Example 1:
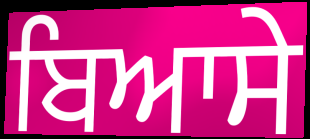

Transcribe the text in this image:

ਬਿਆਸੇ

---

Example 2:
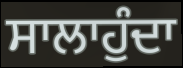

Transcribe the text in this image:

ਸਾਲਾਹੁੰਦਾ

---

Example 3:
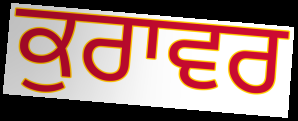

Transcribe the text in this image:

ਕੁਰਾਵਰ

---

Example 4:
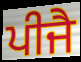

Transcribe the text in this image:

ਪੀਜੈ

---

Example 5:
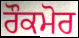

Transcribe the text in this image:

ਰੌਕਮੋਰ